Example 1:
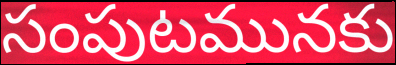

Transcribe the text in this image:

సంపుటమునకు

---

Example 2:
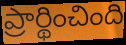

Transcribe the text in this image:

ప్రార్థించింది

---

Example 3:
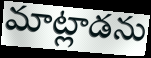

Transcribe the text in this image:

మాట్లాడను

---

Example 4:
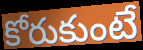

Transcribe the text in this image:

కోరుకుంటే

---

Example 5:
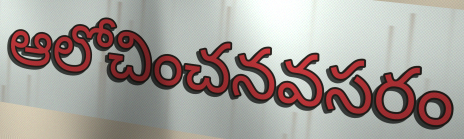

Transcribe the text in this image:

ఆలోచించనవసరం